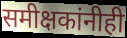
समीक्षकांनीही